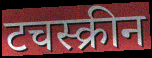
टचस्क्रीन